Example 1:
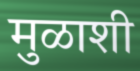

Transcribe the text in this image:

मुळाशी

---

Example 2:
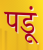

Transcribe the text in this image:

पडूं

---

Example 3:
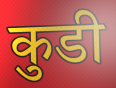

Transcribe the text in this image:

कुडी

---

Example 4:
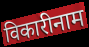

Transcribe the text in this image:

विकारीनाम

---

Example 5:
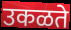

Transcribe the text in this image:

उकळते